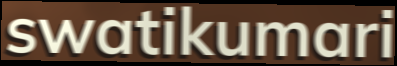
swatikumari